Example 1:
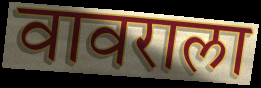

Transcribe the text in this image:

वावराला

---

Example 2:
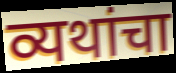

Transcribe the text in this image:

व्यथांचा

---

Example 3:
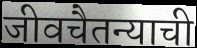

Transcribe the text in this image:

जीवचैतन्याची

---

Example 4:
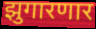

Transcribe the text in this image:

झुगारणार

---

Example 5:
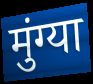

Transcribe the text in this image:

मुंग्या